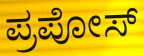
ಪ್ರಪೋಸ್